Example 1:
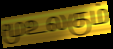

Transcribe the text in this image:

மூஉலகும்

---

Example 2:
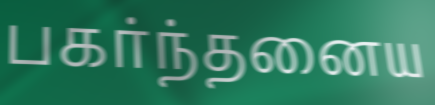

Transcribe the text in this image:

பகர்ந்தனைய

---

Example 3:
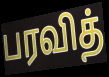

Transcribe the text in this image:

பரவித்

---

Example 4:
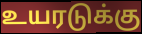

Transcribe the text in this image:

உயரடுக்கு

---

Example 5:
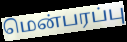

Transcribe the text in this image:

மென்பரப்பு